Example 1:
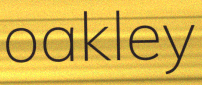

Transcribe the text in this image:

oakley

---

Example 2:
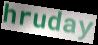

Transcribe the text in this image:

hruday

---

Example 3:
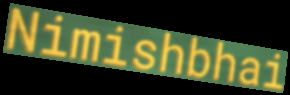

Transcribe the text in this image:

Nimishbhai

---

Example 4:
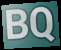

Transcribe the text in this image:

BQ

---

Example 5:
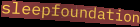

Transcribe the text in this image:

sleepfoundation